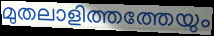
മുതലാളിത്തത്തേയും